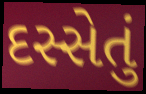
દસ્સેતું